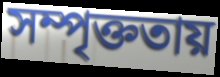
সম্পৃক্ততায়